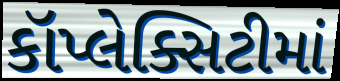
કૉપ્લેક્સિટીમાં